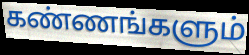
கண்ணங்களும்